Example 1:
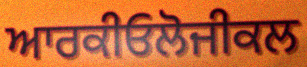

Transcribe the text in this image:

ਆਰਕੀਓਲੋਜੀਕਲ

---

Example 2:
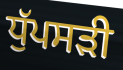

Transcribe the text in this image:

ਧੁੱਪਸੜੀ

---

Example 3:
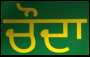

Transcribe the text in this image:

ਚੌਦਾ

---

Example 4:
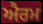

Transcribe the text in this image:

ਐਰਮ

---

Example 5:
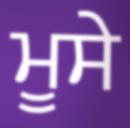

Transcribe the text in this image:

ਮੂਸੇ